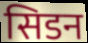
सिडन